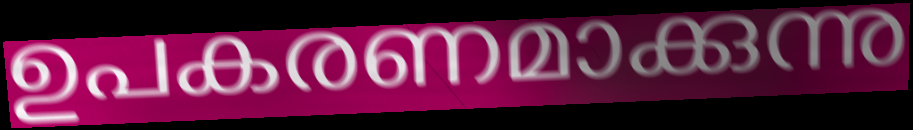
ഉപകരണമാക്കുന്നു